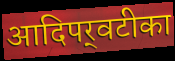
आदिपर्वटीका